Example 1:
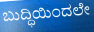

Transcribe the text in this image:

ಬುದ್ಧಿಯಿಂದಲೇ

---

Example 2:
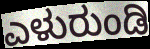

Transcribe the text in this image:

ಎಳುರುಂಡಿ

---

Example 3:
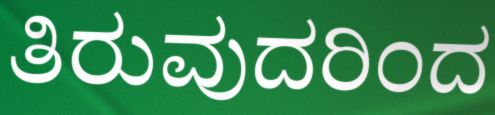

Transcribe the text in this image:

ತಿರುವುದರಿಂದ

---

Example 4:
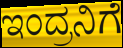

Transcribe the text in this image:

ಇಂದ್ರನಿಗೆ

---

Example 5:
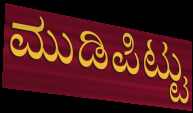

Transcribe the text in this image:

ಮುಡಿಪಿಟ್ಟು